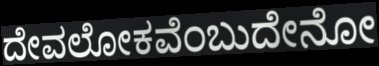
ದೇವಲೋಕವೆಂಬುದೇನೋ